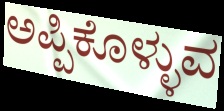
ಅಪ್ಪಿಕೊಳ್ಳುವ